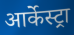
आर्केस्ट्रा